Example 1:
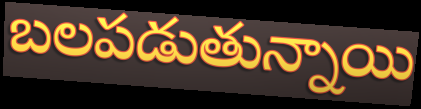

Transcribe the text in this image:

బలపడుతున్నాయి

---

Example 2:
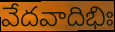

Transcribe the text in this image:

వేదవాదిభిః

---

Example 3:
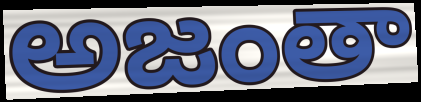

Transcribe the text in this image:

అజంతా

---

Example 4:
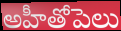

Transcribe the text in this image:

అహీతోపెలు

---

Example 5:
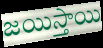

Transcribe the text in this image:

జయిస్తాయి